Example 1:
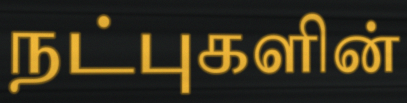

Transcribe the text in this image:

நட்புகளின்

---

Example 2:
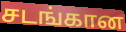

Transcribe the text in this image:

சடங்கான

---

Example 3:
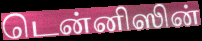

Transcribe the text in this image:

டென்னிஸின்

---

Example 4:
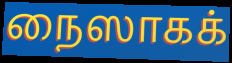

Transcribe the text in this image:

நைஸாகக்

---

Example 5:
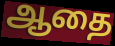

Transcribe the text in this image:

ஆதை